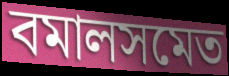
বমালসমেত